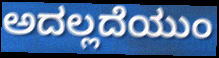
ಅದಲ್ಲದೆಯುಂ